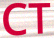
CT